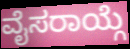
ವೈಸರಾಯ್ಗೆ